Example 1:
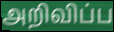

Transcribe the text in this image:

அறிவிப்ப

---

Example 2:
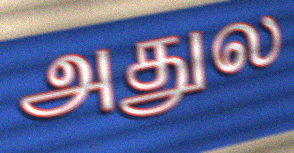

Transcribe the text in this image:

அதுல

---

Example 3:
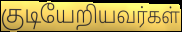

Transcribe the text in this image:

குடியேறியவர்கள்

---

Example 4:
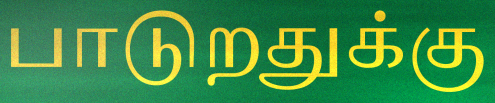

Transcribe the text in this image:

பாடுறதுக்கு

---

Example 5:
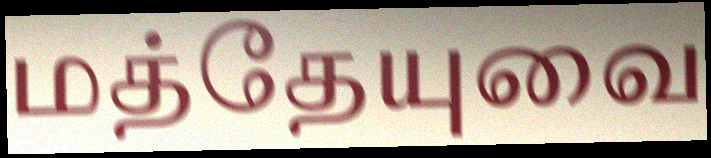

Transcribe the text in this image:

மத்தேயுவை